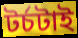
টর্চটাই